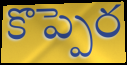
కొప్పెర